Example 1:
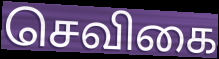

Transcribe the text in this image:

செவிகை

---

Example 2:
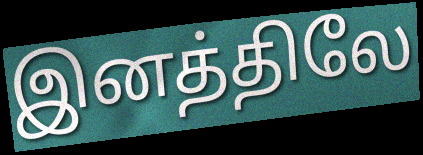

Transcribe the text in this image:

இனத்திலே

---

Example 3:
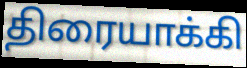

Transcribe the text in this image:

திரையாக்கி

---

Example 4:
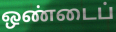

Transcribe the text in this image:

ஒண்டைப்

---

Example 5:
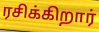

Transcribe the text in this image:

ரசிக்கிறார்